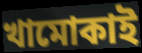
খামোকাই